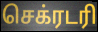
செக்ரடரி